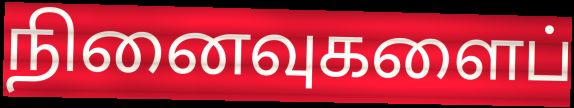
நினைவுகளைப்